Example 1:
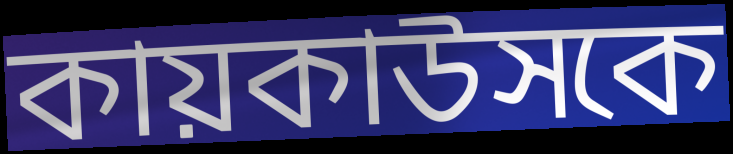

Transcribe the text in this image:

কায়কাউসকে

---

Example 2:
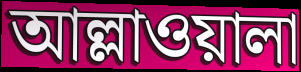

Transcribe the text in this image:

আল্লাওয়ালা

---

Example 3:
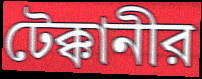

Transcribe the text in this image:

টেক্কানীর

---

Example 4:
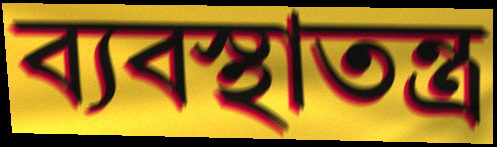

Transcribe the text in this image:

ব্যবস্থাতন্ত্র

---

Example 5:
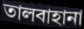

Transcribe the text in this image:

তালবাহানা